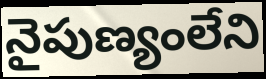
నైపుణ్యంలేని